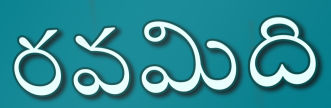
రవమిది